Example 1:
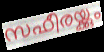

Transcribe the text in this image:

സഫീരയ്ക്കും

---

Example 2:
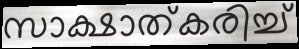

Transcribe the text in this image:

സാക്ഷാത്കരിച്ച്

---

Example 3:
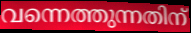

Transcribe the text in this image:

വന്നെത്തുന്നതിന്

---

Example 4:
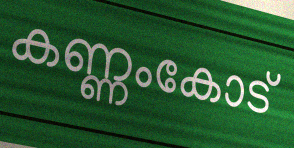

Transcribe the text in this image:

കണ്ണംകോട്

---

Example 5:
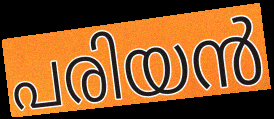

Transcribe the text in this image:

പരിയൻ